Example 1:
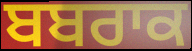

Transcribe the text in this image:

ਬਬਰਾਕ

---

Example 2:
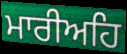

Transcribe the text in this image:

ਮਾਰੀਅਹਿ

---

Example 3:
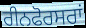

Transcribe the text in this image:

ਰੀਨਫੋਰਸਰਾਂ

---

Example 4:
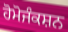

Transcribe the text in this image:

ਹੋਮੋਜੰਕਸ਼ਨ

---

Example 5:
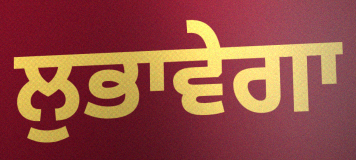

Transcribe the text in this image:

ਲੁਭਾਵੇਗਾ